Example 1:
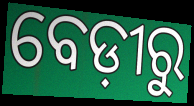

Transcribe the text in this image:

ବେଡ଼ୀରୁ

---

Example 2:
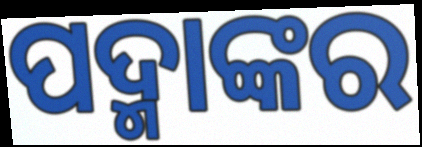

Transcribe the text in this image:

ପଦ୍ମାଙ୍କର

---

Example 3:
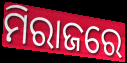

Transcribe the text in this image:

ମିରାଜରେ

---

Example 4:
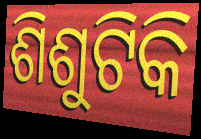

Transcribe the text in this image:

ଶିଶୁଟିକି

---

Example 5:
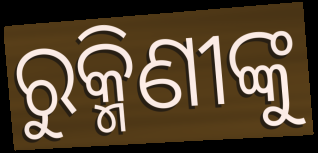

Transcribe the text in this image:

ରୁକ୍ମିଣୀଙ୍କୁ